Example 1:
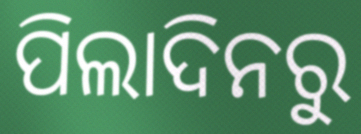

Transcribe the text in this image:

ପିଲାଦିନରୁ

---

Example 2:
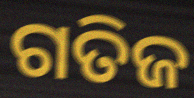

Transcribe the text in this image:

ଗତିଜ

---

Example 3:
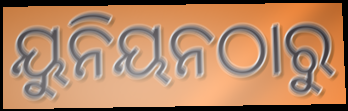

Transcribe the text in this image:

ୟୁନିୟନଠାରୁ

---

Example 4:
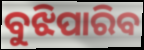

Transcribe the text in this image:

ବୁଝିପାରିବ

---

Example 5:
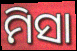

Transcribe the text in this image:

ମିସା